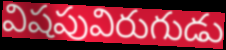
విషపువిరుగుడు